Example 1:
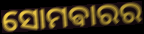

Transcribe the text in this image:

ସୋମଵାରର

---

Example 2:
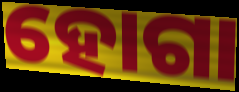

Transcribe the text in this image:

ହୋଗା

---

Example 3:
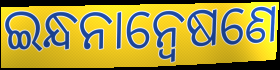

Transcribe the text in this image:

ଇନ୍ଧନାନ୍ଵେଷଣେ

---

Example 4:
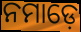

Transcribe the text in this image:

ନମାଡ଼େ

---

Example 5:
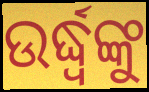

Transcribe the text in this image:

ଉର୍ଦ୍ଧ୍ୱଙ୍କୁ